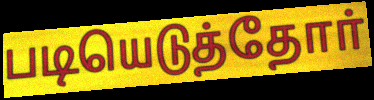
படியெடுத்தோர்